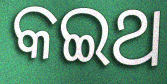
କଇଥ